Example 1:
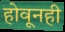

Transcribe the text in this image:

होवूनही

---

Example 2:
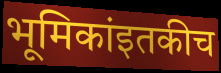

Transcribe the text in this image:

भूमिकांइतकीच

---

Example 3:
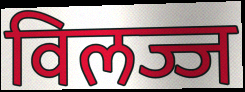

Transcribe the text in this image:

विलज्ज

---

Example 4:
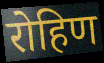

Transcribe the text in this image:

रोहिण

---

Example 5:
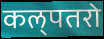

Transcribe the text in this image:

कल्पतरो